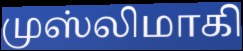
முஸ்லிமாகி